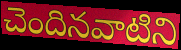
చెందినవాటిని